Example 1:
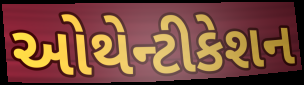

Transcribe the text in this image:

ઓથેન્ટીકેશન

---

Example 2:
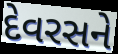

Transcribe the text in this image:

દેવરસને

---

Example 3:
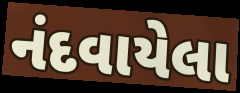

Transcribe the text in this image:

નંદવાયેલા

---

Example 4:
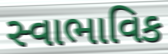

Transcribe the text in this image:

સ્વાભાવિક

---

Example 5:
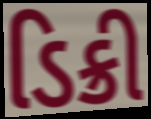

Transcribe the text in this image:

ડિક્રી